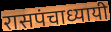
रासपंचाध्यायी